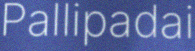
Pallipadai